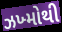
ઝખ્મોથી